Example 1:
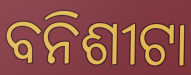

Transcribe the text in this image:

ବନିଶୀଟା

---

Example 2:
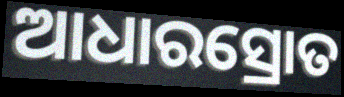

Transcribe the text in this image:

ଆଧାରସ୍ରୋତ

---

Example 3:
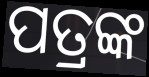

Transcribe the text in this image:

ପତ୍ରଙ୍କ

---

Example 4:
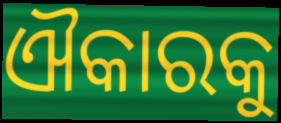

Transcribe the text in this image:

ଐକାରକୁ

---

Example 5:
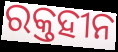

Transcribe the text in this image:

ରକ୍ତହୀନ